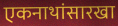
एकनाथांसारखा